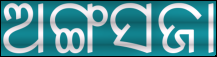
ଅଙ୍ଗସଜା